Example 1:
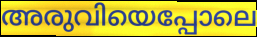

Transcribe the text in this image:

അരുവിയെപ്പോലെ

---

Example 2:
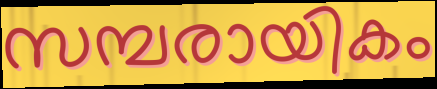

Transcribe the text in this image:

സമ്പരായികം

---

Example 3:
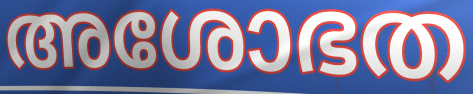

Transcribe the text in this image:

അശോഭത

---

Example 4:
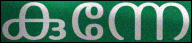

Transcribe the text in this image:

കുന്നേ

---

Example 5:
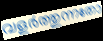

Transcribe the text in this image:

വളർത്തുന്നതോ